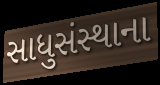
સાધુસંસ્થાના